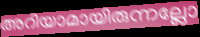
അറിയാമായിരുന്നല്ലോ